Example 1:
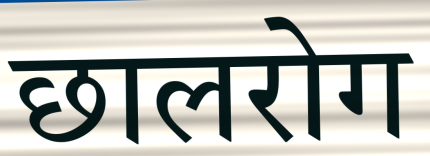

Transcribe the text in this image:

छालरोग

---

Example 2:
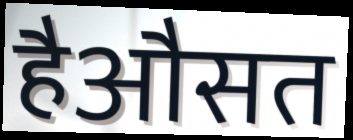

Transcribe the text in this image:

हैऔसत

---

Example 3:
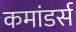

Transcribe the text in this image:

कमांडर्स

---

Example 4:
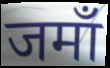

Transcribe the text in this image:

जमाँ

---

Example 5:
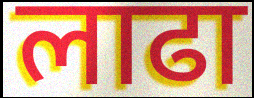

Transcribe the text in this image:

लाढा